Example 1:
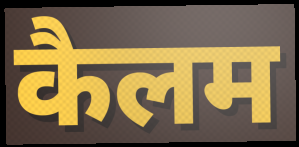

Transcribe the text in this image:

कैलम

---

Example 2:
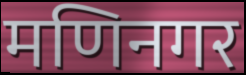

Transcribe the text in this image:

मणिनगर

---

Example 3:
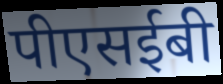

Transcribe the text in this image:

पीएसईबी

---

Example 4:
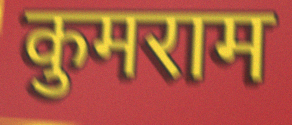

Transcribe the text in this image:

कुमराम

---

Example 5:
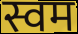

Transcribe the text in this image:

स्वम